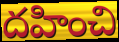
దహించి